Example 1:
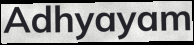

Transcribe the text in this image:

Adhyayam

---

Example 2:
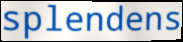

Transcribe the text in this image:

splendens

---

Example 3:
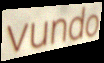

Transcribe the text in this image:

vundo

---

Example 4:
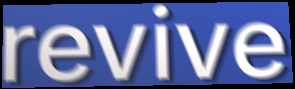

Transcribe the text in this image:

revive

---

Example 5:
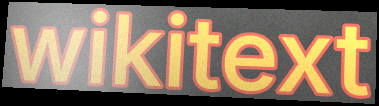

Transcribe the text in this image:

wikitext